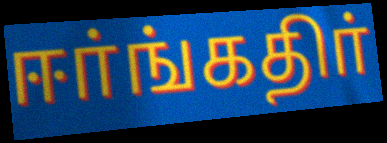
ஈர்ங்கதிர்